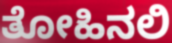
ತೋಹಿನಲಿ